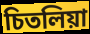
চিতলিয়া